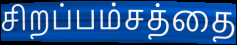
சிறப்பம்சத்தை